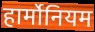
हार्मोनियम